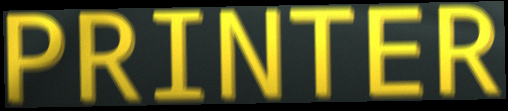
PRINTER